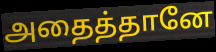
அதைத்தானே